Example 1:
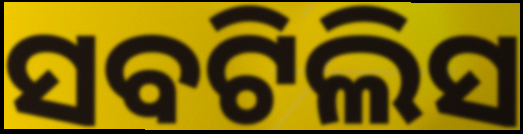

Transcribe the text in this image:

ସବଟିଲିସ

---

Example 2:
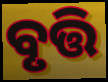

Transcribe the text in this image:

ବୃତ୍ତି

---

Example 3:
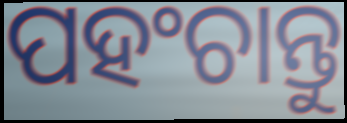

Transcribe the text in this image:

ପହଂଚାନ୍ତୁ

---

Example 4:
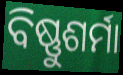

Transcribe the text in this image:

ବିଷ୍ଣୁଶର୍ମା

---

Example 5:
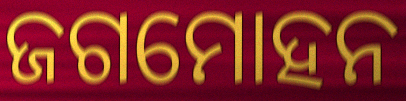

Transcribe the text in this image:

ଜଗମୋହନ